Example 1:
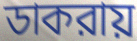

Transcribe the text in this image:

ডাকরায়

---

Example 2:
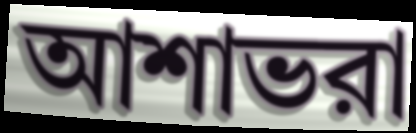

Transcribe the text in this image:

আশাভরা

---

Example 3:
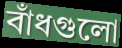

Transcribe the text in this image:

বাঁধগুলো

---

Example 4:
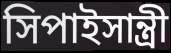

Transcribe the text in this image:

সিপাইসান্ত্রী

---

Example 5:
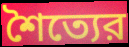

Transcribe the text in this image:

শৈত্যের